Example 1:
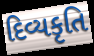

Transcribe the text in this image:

દિવ્યકૃતિ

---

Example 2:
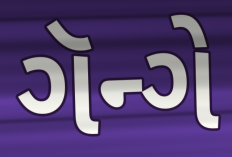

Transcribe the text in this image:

ગૅન્ગે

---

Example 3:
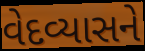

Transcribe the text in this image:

વેદવ્યાસને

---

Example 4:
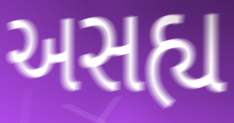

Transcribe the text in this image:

અસહ્ય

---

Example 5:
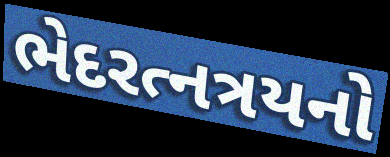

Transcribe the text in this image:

ભેદરત્નત્રયનો